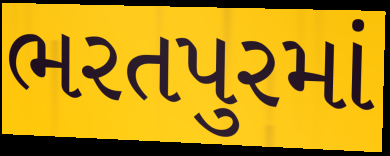
ભરતપુરમાં